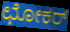
ಛೋಕರ್